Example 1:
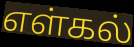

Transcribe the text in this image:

எள்கல்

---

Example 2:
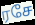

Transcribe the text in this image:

ரசே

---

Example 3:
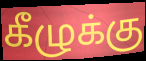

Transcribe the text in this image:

கீழுக்கு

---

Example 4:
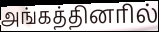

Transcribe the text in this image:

அங்கத்தினரில்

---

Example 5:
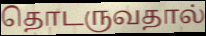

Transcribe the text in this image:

தொடருவதால்